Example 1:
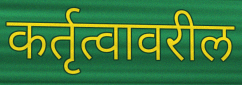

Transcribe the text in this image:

कर्तृत्वावरील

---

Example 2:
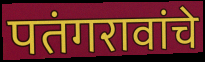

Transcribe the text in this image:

पतंगरावांचे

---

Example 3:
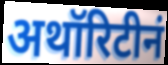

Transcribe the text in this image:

अथॉरिटीनं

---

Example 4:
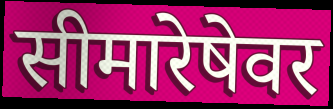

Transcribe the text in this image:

सीमारेषेवर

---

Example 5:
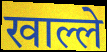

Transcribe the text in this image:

खाल्ले